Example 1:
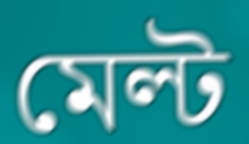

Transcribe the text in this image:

মেল্ট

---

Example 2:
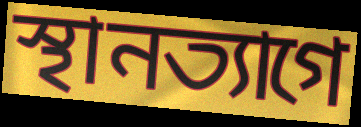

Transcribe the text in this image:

স্থানত্যাগে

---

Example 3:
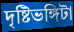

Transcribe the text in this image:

দৃষ্টিভঙ্গিটা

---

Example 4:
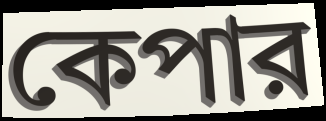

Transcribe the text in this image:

কেপার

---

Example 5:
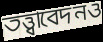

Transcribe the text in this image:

তত্ত্বাবেদনও